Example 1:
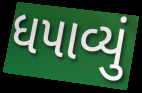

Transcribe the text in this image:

ધપાવ્યું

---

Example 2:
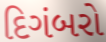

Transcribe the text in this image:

દિગંબરો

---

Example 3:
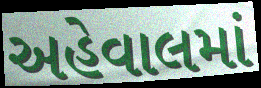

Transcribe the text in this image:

અહેવાલમાં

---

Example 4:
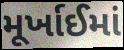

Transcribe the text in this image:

મૂર્ખાઈમાં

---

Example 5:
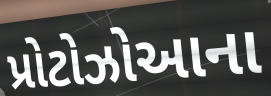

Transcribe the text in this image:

પ્રોટોઝોઆના